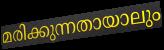
മരിക്കുന്നതായാലും